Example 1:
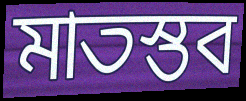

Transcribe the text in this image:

মাতস্তব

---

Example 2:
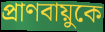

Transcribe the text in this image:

প্রাণবায়ুকে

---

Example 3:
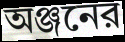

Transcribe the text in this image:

অঞ্জনের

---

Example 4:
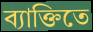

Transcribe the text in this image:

ব্যাক্তিতে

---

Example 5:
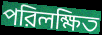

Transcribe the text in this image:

পরিলক্ষিত